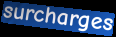
surcharges